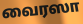
வைரஸா